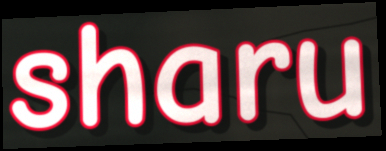
sharu